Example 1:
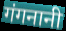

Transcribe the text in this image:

गंगनानी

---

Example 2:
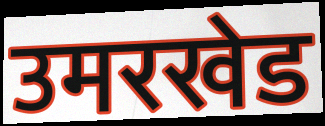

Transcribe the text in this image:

उमरखेड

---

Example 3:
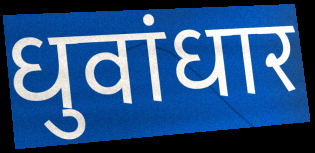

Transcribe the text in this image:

धुवांधार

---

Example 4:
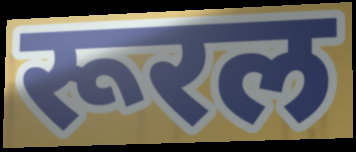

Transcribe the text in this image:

रूरल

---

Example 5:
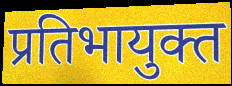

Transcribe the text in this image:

प्रतिभायुक्त